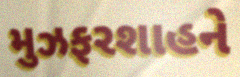
મુઝફરશાહને